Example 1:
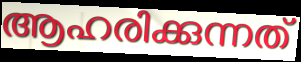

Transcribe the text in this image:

ആഹരിക്കുന്നത്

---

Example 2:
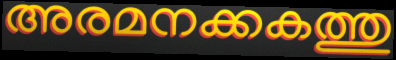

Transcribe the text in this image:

അരമനക്കകത്തു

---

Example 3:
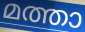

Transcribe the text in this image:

മത്താ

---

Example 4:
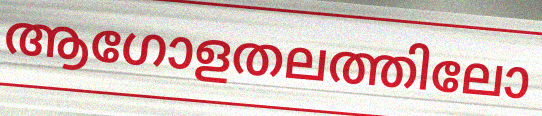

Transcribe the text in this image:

ആഗോളതലത്തിലോ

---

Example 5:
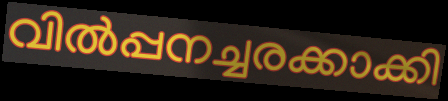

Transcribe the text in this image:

വിൽപ്പനച്ചരക്കാക്കി